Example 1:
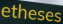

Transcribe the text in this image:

etheses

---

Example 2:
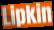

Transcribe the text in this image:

Lipkin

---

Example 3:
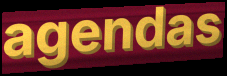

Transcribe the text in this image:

agendas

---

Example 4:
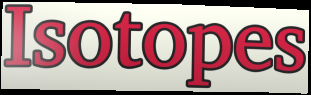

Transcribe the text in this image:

Isotopes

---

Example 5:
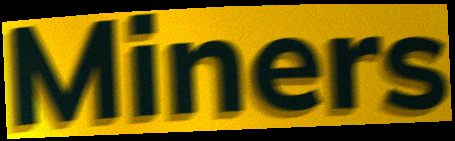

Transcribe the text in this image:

Miners